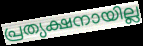
പ്രത്യക്ഷനായില്ല